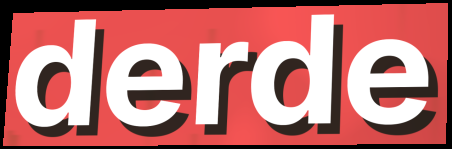
derde